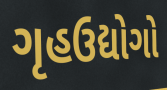
ગૃહઉદ્યોગો